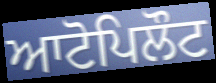
ਆਟੋਪਿਲੌਟ